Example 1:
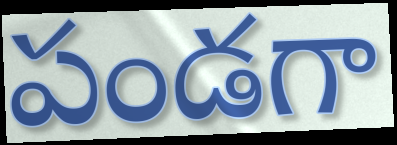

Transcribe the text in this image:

పండగా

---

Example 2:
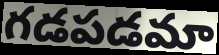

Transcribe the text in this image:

గడపడమా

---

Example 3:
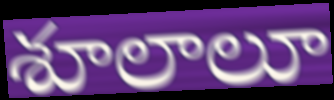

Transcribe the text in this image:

శూలాలూ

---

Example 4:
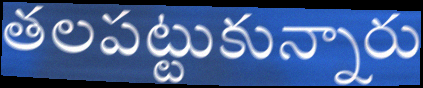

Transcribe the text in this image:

తలపట్టుకున్నారు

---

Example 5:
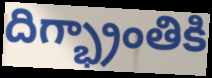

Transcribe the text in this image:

దిగ్భ్రాంతికి